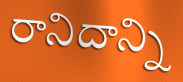
రానిదాన్ని